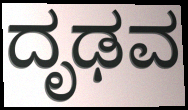
ದೃಢವ